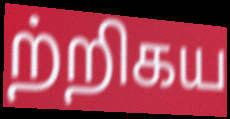
ற்றிகய